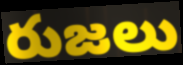
రుజలు